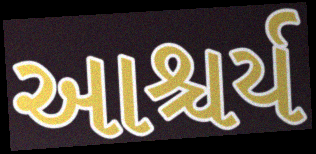
આશ્ચર્ય